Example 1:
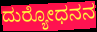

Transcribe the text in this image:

ದುರ‍್ಯೋಧನನ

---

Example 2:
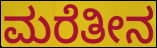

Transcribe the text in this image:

ಮರೆತೀನ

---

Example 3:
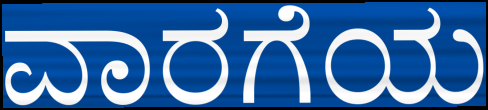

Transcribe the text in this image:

ವಾರಗೆಯ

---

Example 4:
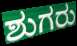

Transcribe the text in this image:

ಶುಗರು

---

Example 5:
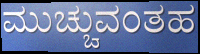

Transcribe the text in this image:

ಮುಚ್ಚುವಂತಹ